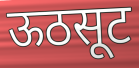
ऊठसूट